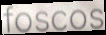
foscos